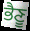
ਭੈਣੂ